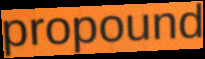
propound